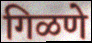
गिळणे